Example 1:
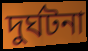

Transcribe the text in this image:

দুৰ্ঘটনা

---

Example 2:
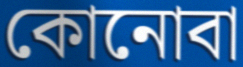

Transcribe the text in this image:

কোনোবা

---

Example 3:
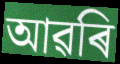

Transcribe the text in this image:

আৱৰি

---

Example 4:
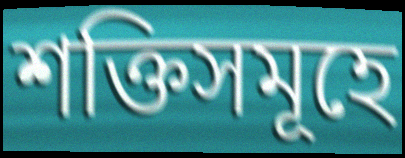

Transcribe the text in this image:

শক্তিসমূহে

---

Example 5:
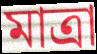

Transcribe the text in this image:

মাত্ৰা